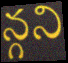
న్గని